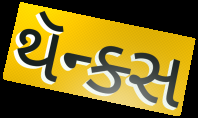
થૅન્ક્સ